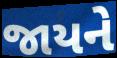
જાયને